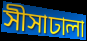
সীসাঢালা